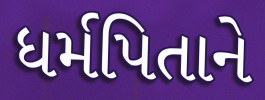
ધર્મપિતાને